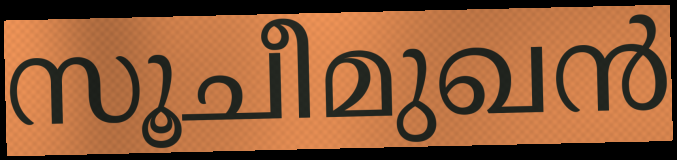
സൂചീമുഖൻ